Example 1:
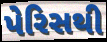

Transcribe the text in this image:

પેરિસથી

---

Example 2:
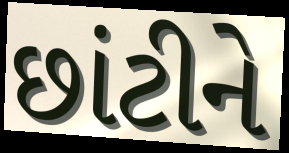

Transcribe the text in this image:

છાંટીને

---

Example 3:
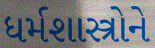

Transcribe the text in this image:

ધર્મશાસ્ત્રોને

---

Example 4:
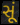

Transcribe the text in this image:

સૂં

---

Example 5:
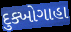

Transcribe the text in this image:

દુક્ખોગાહા